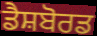
ਡੈਸ਼ਬੋਰਡ